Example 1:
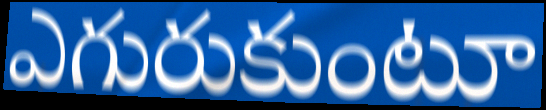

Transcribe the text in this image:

ఎగురుకుంటూ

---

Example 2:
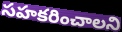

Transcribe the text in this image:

సహకరించాలని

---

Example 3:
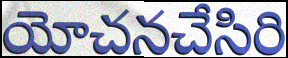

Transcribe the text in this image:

యోచనచేసిరి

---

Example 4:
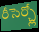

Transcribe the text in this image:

రీసెర్చ్లో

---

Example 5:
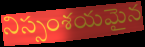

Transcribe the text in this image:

నిస్సంశయమైన